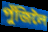
পুঁজিলৈ